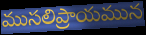
ముసలిప్రాయమున